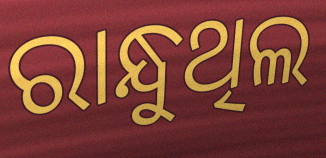
ରାନ୍ଧୁଥିଲ